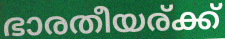
ഭാരതീയര്ക്ക്